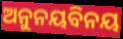
ଅନୁନୟବିନୟ